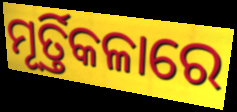
ମୂର୍ତ୍ତିକଳାରେ